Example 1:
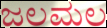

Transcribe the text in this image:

ಜಲಮಲ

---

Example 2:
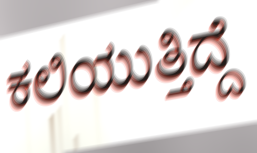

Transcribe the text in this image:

ಕಲಿಯುತ್ತಿದ್ದೆ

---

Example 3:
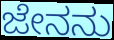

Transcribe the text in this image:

ಜೇನನು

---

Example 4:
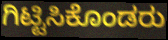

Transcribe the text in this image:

ಗಿಟ್ಟಿಸಿಕೊಂಡರು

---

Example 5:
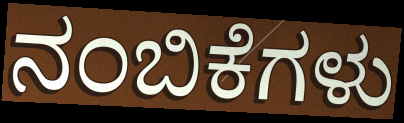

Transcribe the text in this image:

ನಂಬಿಕೆಗಳು